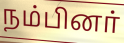
நம்பினர்